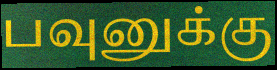
பவுனுக்கு